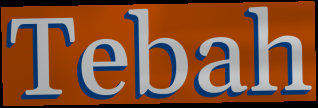
Tebah